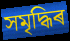
সমৃদ্ধিৰ